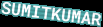
SUMITKUMAR